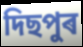
দিছপুৰ